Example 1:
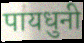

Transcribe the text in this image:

पायधुनी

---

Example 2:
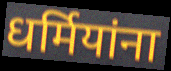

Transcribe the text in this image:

धर्मियांना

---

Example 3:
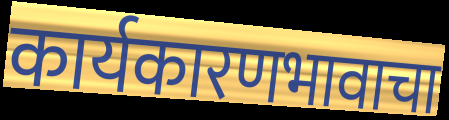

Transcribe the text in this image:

कार्यकारणभावाचा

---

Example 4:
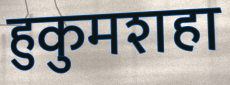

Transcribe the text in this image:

हुकुमशहा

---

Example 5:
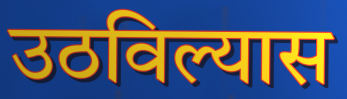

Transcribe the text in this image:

उठविल्यास